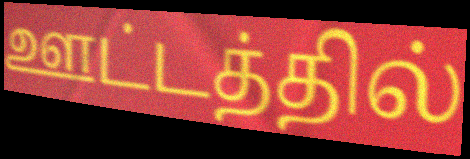
ஊட்டத்தில்